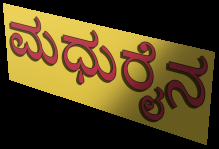
ಮಧುರೈನ